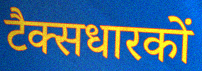
टैक्सधारकों